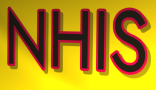
NHIS